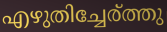
എഴുതിച്ചേര്ത്തു